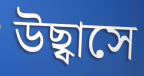
উছ্বাসে